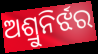
ଅଶ୍ରୁନିର୍ଝର